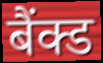
बैंक्ड